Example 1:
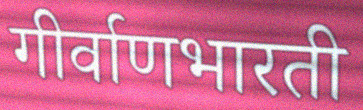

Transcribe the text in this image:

गीर्वाणभारती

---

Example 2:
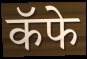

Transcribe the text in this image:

कॅफे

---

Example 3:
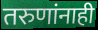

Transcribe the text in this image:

तरुणांनाही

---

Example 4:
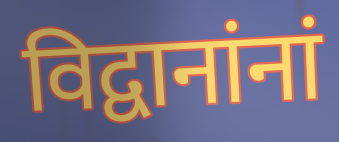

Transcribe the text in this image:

विद्वानांनां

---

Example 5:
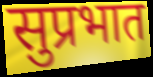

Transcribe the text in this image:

सुप्रभात